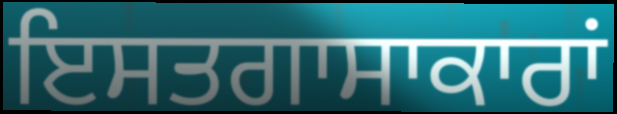
ਇਸਤਗਾਸਾਕਾਰਾਂ